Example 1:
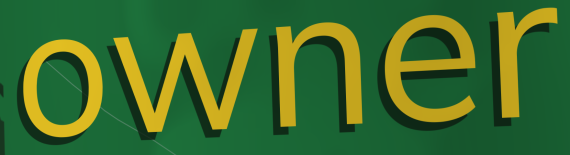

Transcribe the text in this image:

owner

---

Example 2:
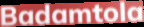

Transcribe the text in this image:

Badamtola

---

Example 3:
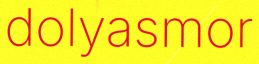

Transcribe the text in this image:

dolyasmor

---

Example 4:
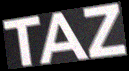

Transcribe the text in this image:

TAZ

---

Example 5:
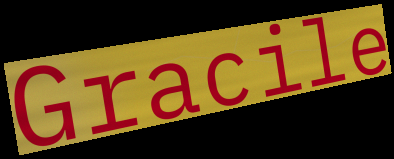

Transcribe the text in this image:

Gracile